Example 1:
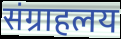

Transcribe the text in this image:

संग्राहलय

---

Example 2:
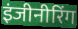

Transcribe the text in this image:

इंजीनीरिंग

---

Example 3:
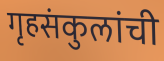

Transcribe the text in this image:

गृहसंकुलांची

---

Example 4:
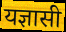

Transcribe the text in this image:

यज्ञासी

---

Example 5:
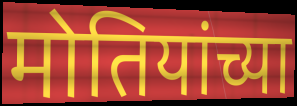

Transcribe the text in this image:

मोतियांच्या